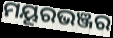
ମୟୂରଭଞ୍ଜର